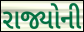
રાજ્યોની